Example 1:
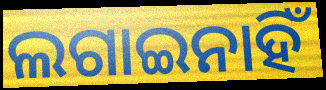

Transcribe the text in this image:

ଲଗାଇନାହିଁ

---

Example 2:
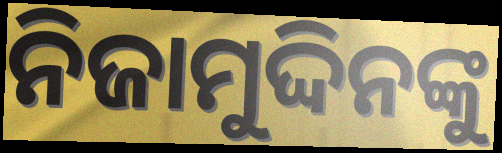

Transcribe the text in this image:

ନିଜାମୁଦ୍ଦିନଙ୍କୁ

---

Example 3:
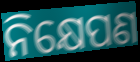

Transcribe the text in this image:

ନିକ୍ଷେପଣ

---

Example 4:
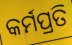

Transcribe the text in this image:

କର୍ମପ୍ରତି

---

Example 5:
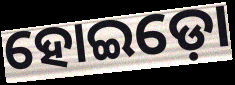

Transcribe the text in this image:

ହୋଇଡ଼ୋ